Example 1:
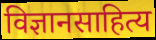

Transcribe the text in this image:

विज्ञानसाहित्य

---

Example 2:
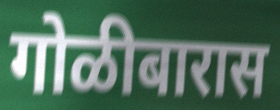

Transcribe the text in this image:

गोळीबारास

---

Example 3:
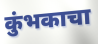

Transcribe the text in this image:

कुंभकाचा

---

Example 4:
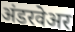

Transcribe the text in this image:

अंडरवेअर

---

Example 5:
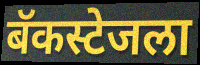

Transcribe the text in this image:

बॅकस्टेजला